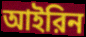
আইরিন